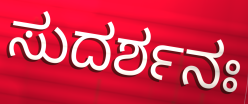
ಸುದರ್ಶನಃ